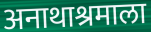
अनाथाश्रमाला